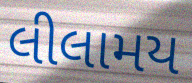
લીલામય